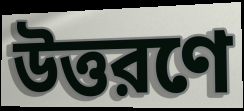
উত্তরণে